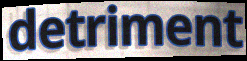
detriment